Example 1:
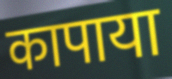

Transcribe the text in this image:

कापाया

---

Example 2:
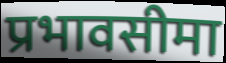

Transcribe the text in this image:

प्रभावसीमा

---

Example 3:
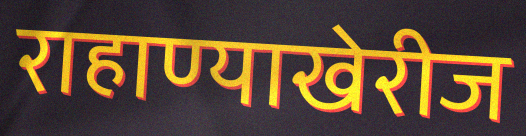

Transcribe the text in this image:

राहाण्याखेरीज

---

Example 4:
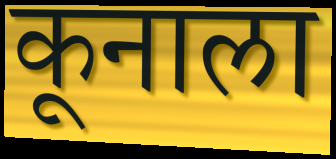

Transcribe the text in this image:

कूनाला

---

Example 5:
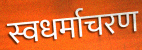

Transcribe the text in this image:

स्वधर्माचरण